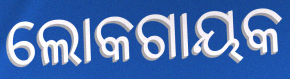
ଲୋକଗାୟକ